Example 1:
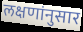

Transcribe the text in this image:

लक्षणांनुसार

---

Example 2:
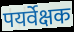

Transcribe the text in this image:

पयर्वेक्षक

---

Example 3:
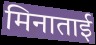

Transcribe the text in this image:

मिनाताई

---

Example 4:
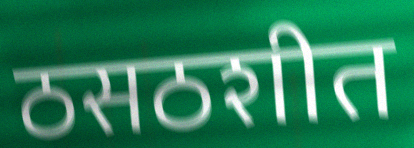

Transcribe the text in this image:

ठसठशीत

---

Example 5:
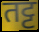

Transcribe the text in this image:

तट्ट